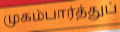
முகம்பார்த்துப்